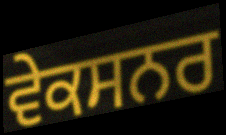
ਵੇਕਸਨਰ